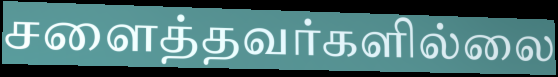
சளைத்தவர்களில்லை